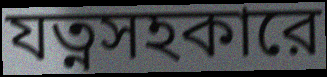
যত্নসহকারে